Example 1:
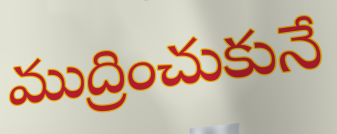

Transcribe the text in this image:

ముద్రించుకునే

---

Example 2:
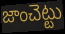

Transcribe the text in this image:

జాంచెట్టు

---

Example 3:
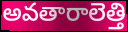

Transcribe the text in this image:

అవతారాలెత్తి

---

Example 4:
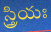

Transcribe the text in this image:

స్త్రియః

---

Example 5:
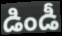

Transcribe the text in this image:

డిండీ